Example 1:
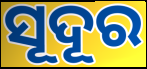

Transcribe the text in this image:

ସୂଦୂର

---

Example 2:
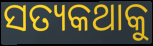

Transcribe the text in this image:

ସତ୍ୟକଥାକୁ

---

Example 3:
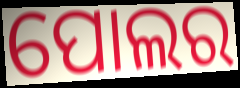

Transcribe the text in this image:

ପୋଲର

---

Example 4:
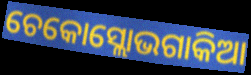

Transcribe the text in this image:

ଚେକୋସ୍ଲୋଭଗାକିଆ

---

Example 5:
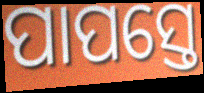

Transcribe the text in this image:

ପାପସ୍ତେ